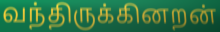
வந்திருக்கினறன்